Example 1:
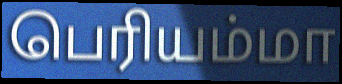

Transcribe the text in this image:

பெரியம்மா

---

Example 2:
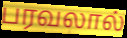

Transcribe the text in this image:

பரவலால்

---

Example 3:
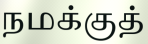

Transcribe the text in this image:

நமக்குத்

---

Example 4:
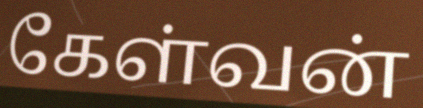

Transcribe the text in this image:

கேள்வன்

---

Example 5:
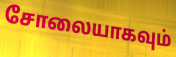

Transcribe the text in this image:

சோலையாகவும்